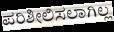
ಪರಿಶೀಲಿಸಲಾಗಿಲ್ಲ